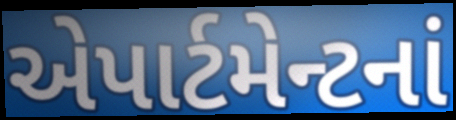
એપાર્ટમેન્ટનાં